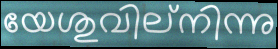
യേശുവില്നിന്നു